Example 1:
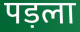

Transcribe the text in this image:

पड़ला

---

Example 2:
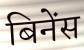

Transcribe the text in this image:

बिनेंस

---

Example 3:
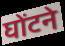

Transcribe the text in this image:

घोंटने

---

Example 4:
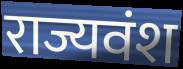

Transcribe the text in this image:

राज्यवंश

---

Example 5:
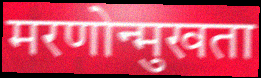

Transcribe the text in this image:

मरणोन्मुखता